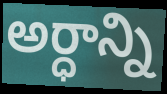
అర్ధాన్ని